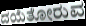
ದಯೆತೋರುವ